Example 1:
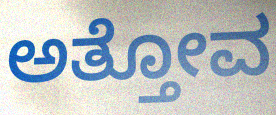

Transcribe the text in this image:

ಅತ್ತೋವ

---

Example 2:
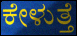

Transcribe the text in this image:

ಕೇಳುತ್ತೆ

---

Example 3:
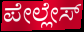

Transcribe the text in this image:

ಪೇಲ್ಲೇಸ್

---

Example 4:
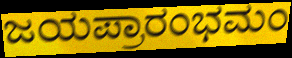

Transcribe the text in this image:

ಜಯಪ್ರಾರಂಭಮಂ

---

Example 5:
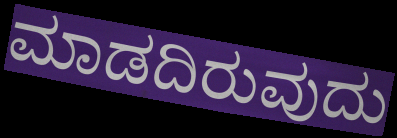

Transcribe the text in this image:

ಮಾಡದಿರುವುದು